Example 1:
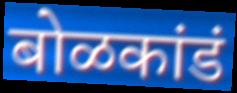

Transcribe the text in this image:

बोळकांडं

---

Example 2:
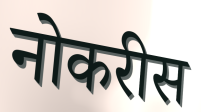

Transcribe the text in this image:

नोकरीस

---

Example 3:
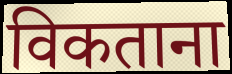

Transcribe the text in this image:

विकताना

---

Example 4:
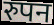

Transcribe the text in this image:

रुपन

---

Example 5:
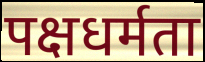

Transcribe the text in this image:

पक्षधर्मता